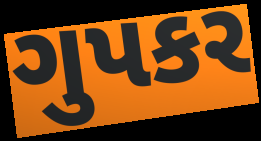
ગુપકર